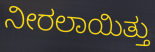
ನೀರಲಾಯಿತ್ತು